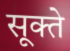
सूक्ते